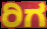
ರಿಗ